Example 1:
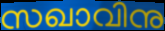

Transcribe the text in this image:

സഖാവിനു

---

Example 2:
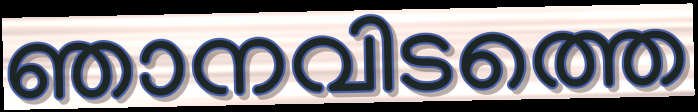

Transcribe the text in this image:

ഞാനവിടത്തെ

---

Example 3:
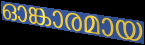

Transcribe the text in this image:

ഓങ്കാരമായ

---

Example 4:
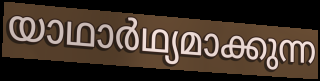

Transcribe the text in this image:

യാഥാർഥ്യമാക്കുന്ന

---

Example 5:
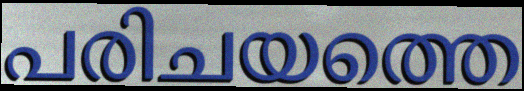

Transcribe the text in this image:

പരിചയത്തെ